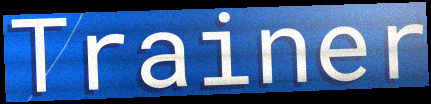
Trainer